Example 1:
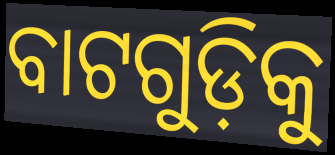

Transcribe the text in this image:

ବାଟଗୁଡ଼ିକୁ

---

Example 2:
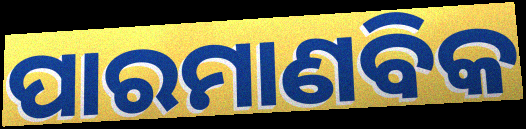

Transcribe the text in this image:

ପାରମାଣବିକ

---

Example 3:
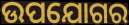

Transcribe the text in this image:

ଉପଯୋଗର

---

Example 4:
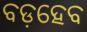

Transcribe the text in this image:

ବଡ଼ହେବ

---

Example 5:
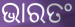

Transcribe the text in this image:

ଭାରତଂ